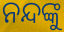
ନନ୍ଦଙ୍କୁ